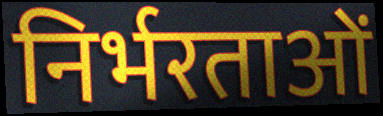
निर्भरताओं